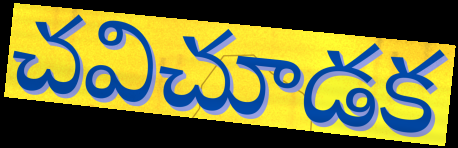
చవిచూడక